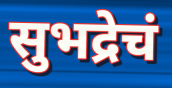
सुभद्रेचं